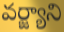
వర్జ్యాని